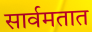
सार्वमतात